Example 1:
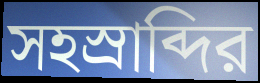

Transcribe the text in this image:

সহস্রাব্দির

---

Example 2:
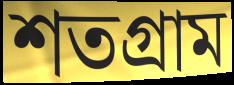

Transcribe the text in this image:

শতগ্রাম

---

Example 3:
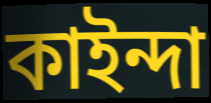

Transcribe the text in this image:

কাইন্দা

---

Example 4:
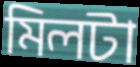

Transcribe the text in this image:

মিলটা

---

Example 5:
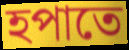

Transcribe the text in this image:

হপাতে